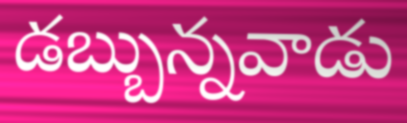
డబ్బున్నవాడు